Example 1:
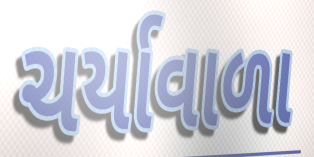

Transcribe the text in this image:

ચર્યાવાળા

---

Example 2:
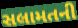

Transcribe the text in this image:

સલામતની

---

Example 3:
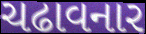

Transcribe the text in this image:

ચઢાવનાર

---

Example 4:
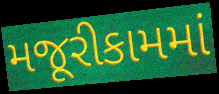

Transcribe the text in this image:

મજૂરીકામમાં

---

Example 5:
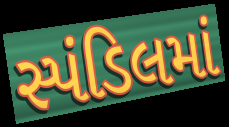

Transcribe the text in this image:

સ્પંડિલમાં